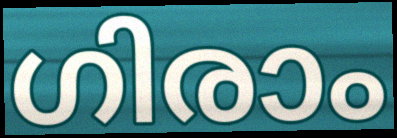
ഗിരാം